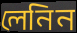
লেনিন